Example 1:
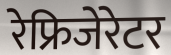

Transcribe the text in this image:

रेफ्रिजेरेटर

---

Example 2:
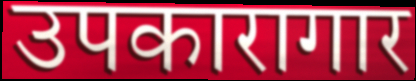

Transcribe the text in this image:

उपकारागार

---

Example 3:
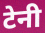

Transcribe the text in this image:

टेनी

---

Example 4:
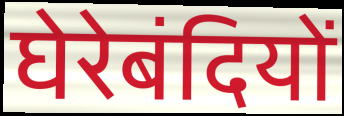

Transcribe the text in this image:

घेरेबंदियों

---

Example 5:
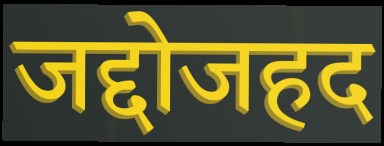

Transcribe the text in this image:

जद्दोजहद